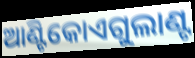
ଆଣ୍ଟିକୋଏଗୁଲାଣ୍ଟ